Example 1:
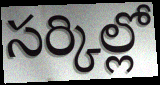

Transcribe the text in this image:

సర్కిల్లో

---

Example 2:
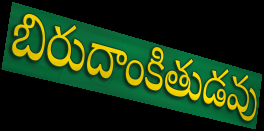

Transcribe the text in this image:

బిరుదాంకితుడవు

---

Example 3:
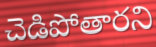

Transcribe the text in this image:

చెడిపోతారని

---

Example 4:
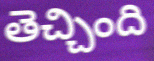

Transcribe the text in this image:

తెచ్చింది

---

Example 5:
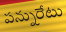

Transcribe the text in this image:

పన్నురేటు